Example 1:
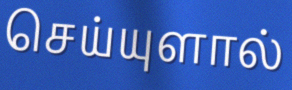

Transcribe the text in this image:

செய்யுளால்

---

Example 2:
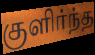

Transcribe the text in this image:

குளிர்ந்த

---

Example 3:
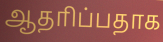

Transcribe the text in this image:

ஆதரிப்பதாக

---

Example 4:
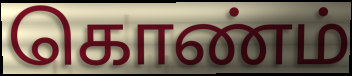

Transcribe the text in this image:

கொண்ம்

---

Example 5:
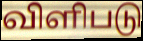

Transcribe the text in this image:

விளிபடு